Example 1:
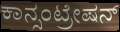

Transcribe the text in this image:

ಕಾನ್ಸಂಟ್ರೇಷನ್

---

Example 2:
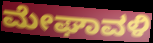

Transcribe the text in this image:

ಮೇಘಾವಳಿ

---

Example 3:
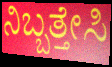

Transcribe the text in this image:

ನಿಬ್ಬತ್ತೇಸಿ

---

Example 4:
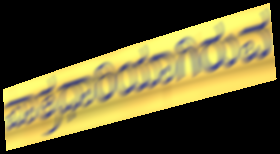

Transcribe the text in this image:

ಪಾತ್ರಧಾರಿಯಾಗಿರುವ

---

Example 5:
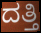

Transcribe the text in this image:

ದತ್ತಿ